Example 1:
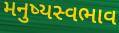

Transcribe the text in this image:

મનુષ્યસ્વભાવ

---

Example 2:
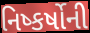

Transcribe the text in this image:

નિષ્કર્ષોની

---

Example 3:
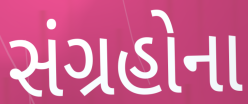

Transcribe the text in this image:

સંગ્રહોના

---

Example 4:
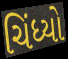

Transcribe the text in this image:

ચિંધ્યો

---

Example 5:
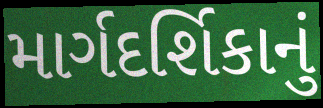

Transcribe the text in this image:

માર્ગદર્શિકાનું